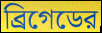
ব্রিগেডের